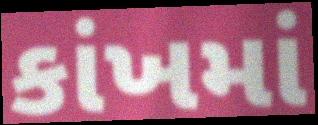
કાંખમાં